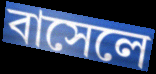
বাসেলে